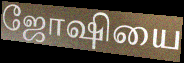
ஜோஷியை